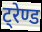
ट्रेण्ड